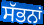
ਸੱਭਨਾਂ